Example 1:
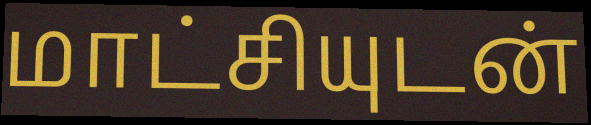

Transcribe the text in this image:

மாட்சியுடன்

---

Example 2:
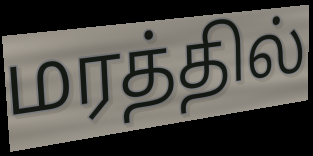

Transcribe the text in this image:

மரத்தில்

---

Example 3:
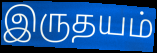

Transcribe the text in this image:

இருதயம்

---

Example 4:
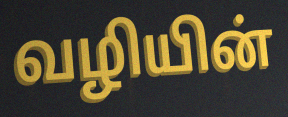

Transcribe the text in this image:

வழியின்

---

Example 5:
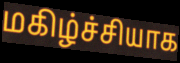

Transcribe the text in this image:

மகிழ்ச்சியாக